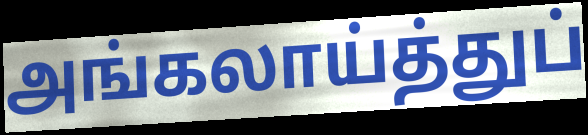
அங்கலாய்த்துப்